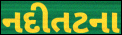
નદીતટના